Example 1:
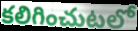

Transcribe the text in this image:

కలిగించుటలో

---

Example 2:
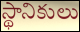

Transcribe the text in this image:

స్థానికులు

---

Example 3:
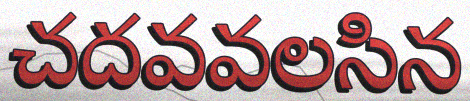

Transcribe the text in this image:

చదవవలసిన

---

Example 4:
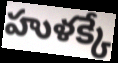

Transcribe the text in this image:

హుళక్కే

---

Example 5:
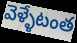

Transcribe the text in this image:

వెళ్ళేటంత